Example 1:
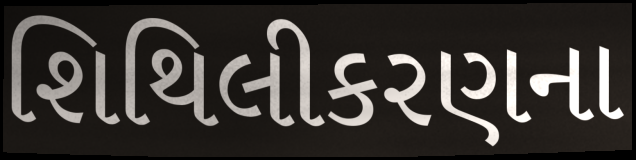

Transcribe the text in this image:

શિથિલીકરણના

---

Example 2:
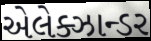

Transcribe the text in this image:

એલેક્ઝાન્ડર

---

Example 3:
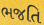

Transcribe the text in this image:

ભજતિ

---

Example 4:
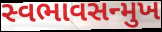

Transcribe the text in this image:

સ્વભાવસન્મુખ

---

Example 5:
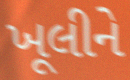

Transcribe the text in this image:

ખૂલીને